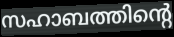
സഹാബത്തിന്റെ